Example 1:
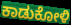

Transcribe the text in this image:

ಕಾಡುಕೋಳಿ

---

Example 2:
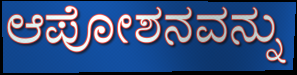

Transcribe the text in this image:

ಆಪೋಶನವನ್ನು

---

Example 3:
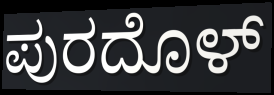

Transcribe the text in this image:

ಪುರದೊಳ್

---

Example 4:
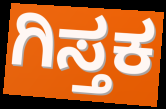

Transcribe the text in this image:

ಗಿಸ್ತಕ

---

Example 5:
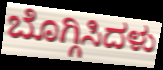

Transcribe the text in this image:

ಬೊಗ್ಗಿಸಿದಳು